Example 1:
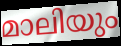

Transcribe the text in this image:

മാലിയും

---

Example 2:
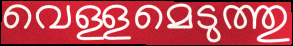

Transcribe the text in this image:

വെള്ളമെടുത്തു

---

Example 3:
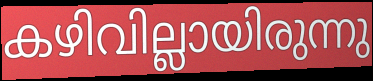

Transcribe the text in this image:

കഴിവില്ലായിരുന്നു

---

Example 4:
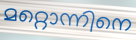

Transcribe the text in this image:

മറ്റൊന്നിനെ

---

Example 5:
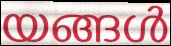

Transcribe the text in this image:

യങ്ങൾ